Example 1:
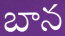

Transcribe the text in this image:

బాన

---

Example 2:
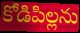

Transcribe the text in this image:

కోడిపిల్లను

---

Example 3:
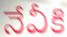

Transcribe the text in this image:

నేవీకి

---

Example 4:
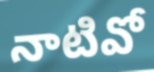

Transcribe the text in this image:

నాటివో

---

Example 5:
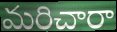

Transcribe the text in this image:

మరిచారా